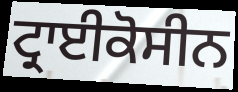
ਟ੍ਰਾਈਕੋਸੀਨ